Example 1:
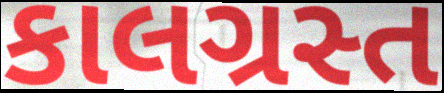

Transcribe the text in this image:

કાલગ્રસ્ત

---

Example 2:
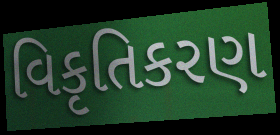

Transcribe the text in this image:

વિકૃતિકરણ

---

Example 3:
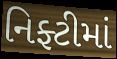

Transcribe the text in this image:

નિફ્ટીમાં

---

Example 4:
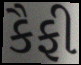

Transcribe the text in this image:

કૈફી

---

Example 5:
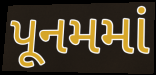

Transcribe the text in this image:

પૂનમમાં